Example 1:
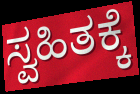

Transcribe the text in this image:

ಸ್ವಹಿತಕ್ಕೆ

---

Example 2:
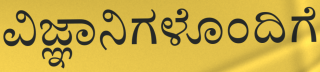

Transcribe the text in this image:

ವಿಜ್ಞಾನಿಗಳೊಂದಿಗೆ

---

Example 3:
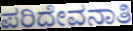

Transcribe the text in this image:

ಪರಿದೇವನಾತಿ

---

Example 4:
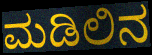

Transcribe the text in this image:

ಮಡಿಲಿನ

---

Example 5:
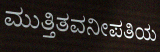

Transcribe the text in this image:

ಮುತ್ತಿತವನೀಪತಿಯ